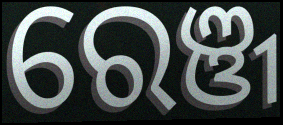
ରେଞ୍ଜ